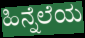
ಹಿನ್ನೆಲೆಯ